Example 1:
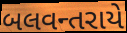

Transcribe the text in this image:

બલવન્તરાયે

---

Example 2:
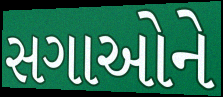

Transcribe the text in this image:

સગાઓને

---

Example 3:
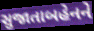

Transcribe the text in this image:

સુજાતાબહેનને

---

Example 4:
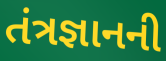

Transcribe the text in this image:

તંત્રજ્ઞાનની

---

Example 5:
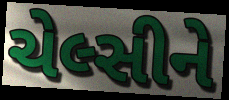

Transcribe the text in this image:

ચેલ્સીને